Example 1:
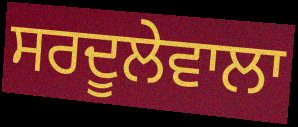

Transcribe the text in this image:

ਸਰਦੂਲੇਵਾਲਾ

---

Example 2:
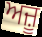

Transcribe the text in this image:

ਅਜ਼ੂ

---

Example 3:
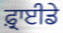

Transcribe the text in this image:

ਫ਼੍ਰਾਈਡੇ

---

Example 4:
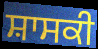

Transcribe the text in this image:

ਸ਼ਾਸਕੀ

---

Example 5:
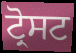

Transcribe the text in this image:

ਟ੍ਰੋਸਟ